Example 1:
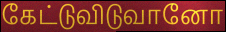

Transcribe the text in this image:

கேட்டுவிடுவானோ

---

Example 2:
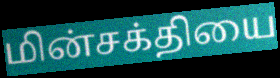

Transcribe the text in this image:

மின்சக்தியை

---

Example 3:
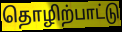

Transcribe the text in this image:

தொழிற்பாட்டு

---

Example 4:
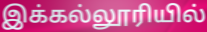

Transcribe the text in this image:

இக்கல்லூரியில்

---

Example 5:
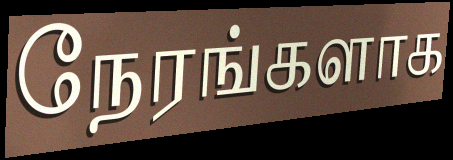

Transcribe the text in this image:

நேரங்களாக